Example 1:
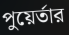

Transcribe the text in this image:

পুয়ের্তার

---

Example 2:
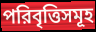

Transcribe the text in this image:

পরিবৃত্তিসমূহ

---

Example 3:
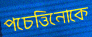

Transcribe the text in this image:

পচেত্তিনোকে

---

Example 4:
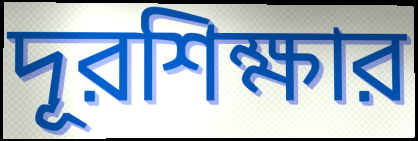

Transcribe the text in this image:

দূরশিক্ষার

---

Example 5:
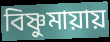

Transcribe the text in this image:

বিষ্ণুমায়ায়